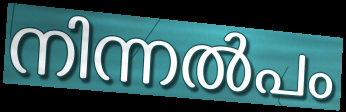
നിന്നൽപം